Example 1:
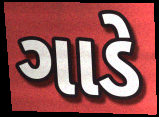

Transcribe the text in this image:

ગાડે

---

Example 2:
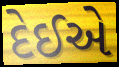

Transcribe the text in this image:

દેઈએ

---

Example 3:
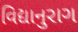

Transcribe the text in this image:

વિદ્યાનુરાગ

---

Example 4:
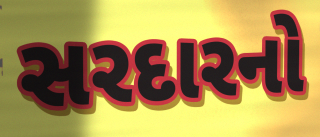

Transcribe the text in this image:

સરદારનો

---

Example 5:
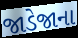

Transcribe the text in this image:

જાડેજાના